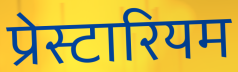
प्रेस्टारियम